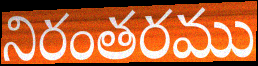
నిరంతరము